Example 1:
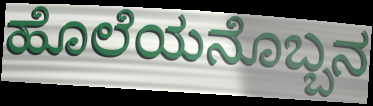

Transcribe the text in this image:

ಹೊಲೆಯನೊಬ್ಬನ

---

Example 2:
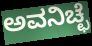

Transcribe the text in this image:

ಅವನಿಚ್ಛೆ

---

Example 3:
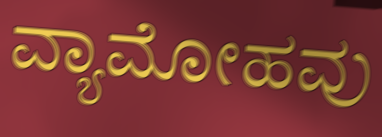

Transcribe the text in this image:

ವ್ಯಾಮೋಹವು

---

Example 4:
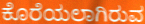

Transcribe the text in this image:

ಕೊರೆಯಲಾಗಿರುವ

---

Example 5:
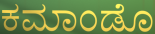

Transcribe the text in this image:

ಕಮಾಂಡೊ